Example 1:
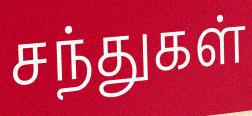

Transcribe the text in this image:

சந்துகள்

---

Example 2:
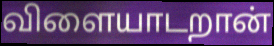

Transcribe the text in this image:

விளையாடறான்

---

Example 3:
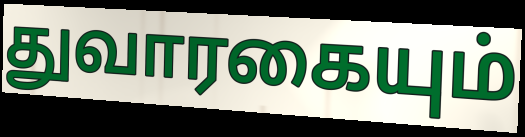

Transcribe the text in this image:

துவாரகையும்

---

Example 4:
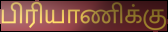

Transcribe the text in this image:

பிரியாணிக்கு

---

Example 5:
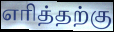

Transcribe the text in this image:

எரித்தற்கு